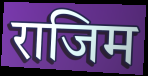
राजिम